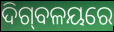
ଦିଗ୍‍ବଳୟରେ